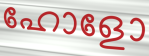
ഹോളോ